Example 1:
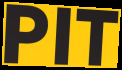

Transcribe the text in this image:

PIT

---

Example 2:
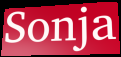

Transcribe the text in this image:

Sonja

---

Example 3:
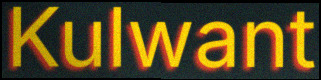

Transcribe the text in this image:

Kulwant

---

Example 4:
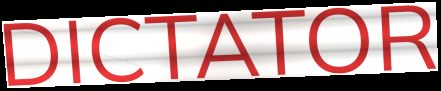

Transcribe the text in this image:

DICTATOR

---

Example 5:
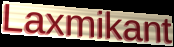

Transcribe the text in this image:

Laxmikant